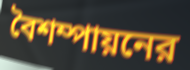
বৈশম্পায়নের